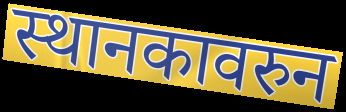
स्थानकावरुन